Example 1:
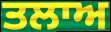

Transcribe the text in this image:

ਤਲਾਅ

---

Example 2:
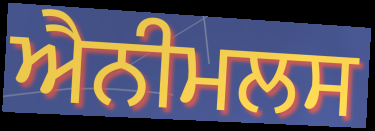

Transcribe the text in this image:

ਐਨੀਮਲਸ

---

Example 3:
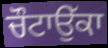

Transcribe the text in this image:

ਚੌਟਾਉੱਕਾ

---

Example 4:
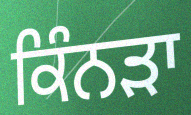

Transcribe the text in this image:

ਕਿੰਨੜਾ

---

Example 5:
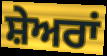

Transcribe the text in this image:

ਸ਼ੇਅਰਾਂ